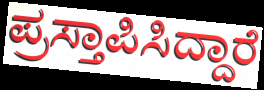
ಪ್ರಸ್ತಾಪಿಸಿದ್ದಾರೆ